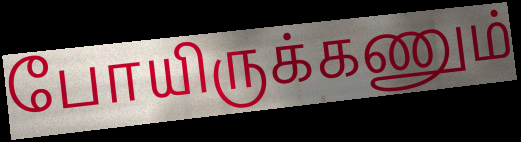
போயிருக்கணும்